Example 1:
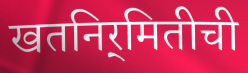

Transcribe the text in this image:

खतनिर्मितीची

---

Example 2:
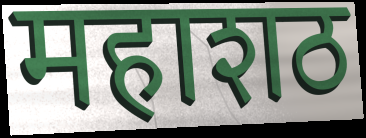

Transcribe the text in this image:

महाशठ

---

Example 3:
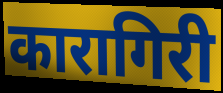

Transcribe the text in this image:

कारागिरी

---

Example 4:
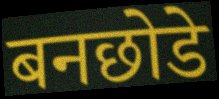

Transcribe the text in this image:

बनछोडे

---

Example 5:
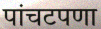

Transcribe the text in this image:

पांचटपणा